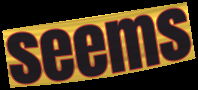
seems